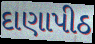
દાણાપીઠ